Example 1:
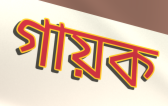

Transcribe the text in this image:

গায়ক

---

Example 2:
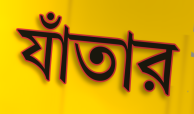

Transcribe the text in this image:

যাঁতার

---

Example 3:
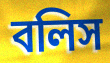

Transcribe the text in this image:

বলিস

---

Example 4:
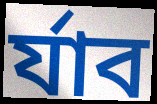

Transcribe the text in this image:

র্যাব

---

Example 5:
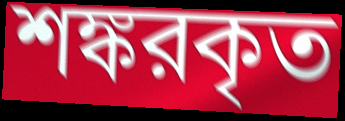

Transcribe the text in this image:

শঙ্করকৃত